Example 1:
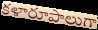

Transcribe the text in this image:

కళారూపాలుగా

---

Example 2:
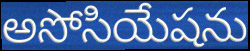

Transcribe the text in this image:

అసోసియేషను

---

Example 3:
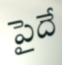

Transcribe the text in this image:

పైదే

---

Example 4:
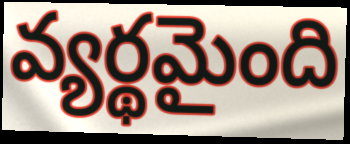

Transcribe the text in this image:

వ్యర్థమైంది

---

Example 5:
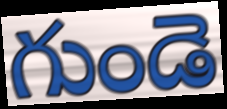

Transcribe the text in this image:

గుండె